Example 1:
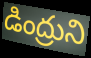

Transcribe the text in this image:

డింద్రుని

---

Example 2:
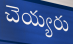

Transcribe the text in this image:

చెయ్యరు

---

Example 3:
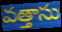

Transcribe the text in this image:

వత్తాసు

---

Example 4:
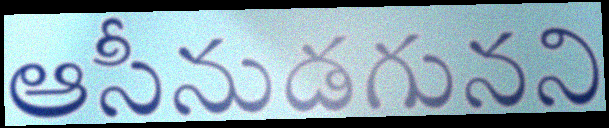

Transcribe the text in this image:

ఆసీనుడగునని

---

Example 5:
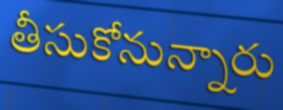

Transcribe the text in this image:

తీసుకోనున్నారు